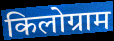
किलोग्राम